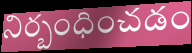
నిర్బంధించడం